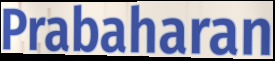
Prabaharan